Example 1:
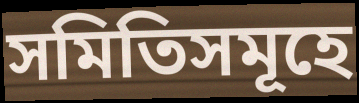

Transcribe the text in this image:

সমিতিসমূহে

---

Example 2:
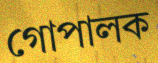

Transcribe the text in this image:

গোপালক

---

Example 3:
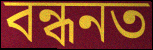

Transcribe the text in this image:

বন্ধনত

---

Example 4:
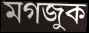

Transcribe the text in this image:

মগজুক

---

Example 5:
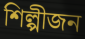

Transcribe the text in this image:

শিল্পীজন